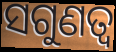
ସଗୁଣତ୍ଵ